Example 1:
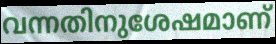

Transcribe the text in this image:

വന്നതിനുശേഷമാണ്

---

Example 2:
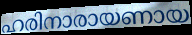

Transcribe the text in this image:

ഹരിനാരായണായ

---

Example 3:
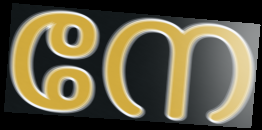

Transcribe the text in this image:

നേ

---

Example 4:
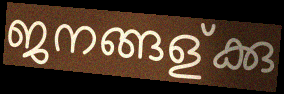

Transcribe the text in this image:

ജനങ്ങള്ക്കു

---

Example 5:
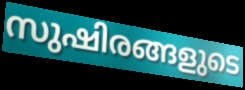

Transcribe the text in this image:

സുഷിരങ്ങളുടെ